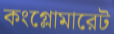
কংগ্লোমারেট